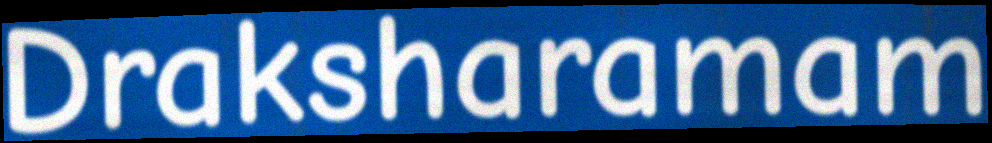
Draksharamam